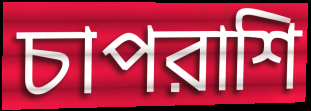
চাপরাশি